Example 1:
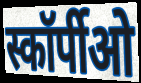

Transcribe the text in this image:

स्कॉर्पीओ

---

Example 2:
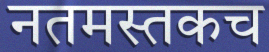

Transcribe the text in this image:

नतमस्तकच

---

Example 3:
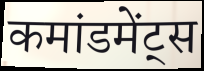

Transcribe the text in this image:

कमांडमेंट्स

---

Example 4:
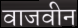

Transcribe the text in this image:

वाजवीन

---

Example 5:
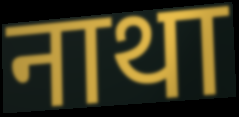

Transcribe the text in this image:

नाथा